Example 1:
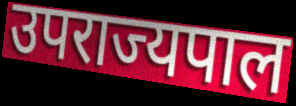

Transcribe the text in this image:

उपराज्यपाल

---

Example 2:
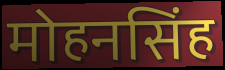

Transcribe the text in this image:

मोहनसिंह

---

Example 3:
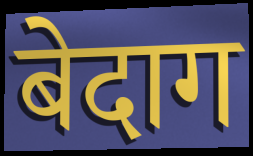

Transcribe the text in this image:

बेदाग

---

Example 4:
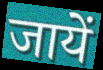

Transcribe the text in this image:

जायें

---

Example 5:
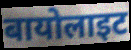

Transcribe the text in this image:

बायोलाइट